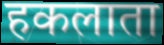
हकलाता